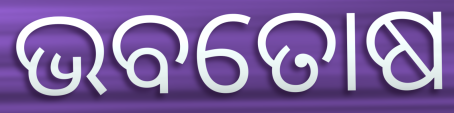
ଭବତୋଷ